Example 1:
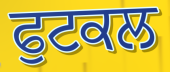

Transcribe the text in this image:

ਫੁਟਕਲ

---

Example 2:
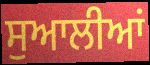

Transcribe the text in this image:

ਸੁਆਲੀਆਂ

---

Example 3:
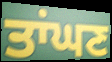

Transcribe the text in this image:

ਤਾਂਘਣ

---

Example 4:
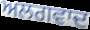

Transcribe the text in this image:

ਅਲਗਵਾਦ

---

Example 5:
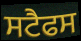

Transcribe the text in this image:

ਸਟੈਫਸ